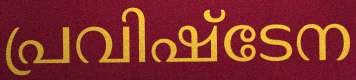
പ്രവിഷ്ടേന